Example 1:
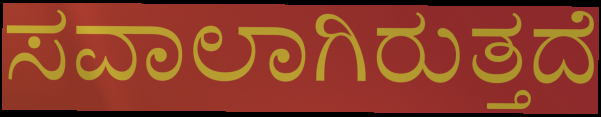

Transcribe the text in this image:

ಸವಾಲಾಗಿರುತ್ತದೆ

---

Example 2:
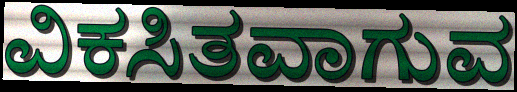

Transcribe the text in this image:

ವಿಕಸಿತವಾಗುವ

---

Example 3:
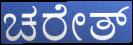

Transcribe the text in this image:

ಚರೇತ್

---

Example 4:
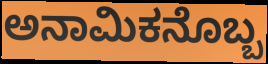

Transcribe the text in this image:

ಅನಾಮಿಕನೊಬ್ಬ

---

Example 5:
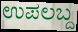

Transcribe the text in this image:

ಉಪಲಬ್ದ